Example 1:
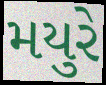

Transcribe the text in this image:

મયુરે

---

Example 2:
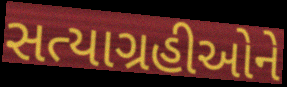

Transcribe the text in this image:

સત્યાગ્રહીઓને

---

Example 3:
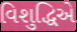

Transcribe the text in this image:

વિશુદ્ધિએ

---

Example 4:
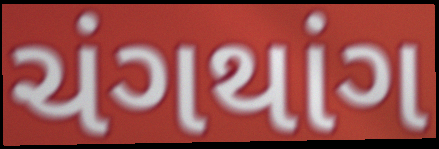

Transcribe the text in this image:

ચંગથાંગ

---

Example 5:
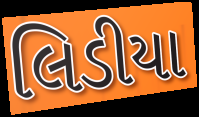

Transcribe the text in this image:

લિડીયા